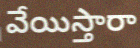
వేయిస్తారా